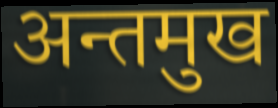
अन्तमुख